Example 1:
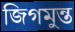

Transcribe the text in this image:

জিগমুন্ত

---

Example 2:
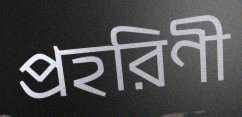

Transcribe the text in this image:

প্রহরিণী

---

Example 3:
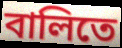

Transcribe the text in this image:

বালিতে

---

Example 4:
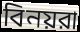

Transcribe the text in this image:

বিনয়রা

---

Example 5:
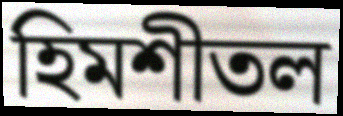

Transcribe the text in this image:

হিমশীতল